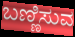
ಬಣ್ಣಿಸುವ